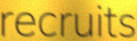
recruits